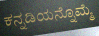
ಕನ್ನಡಿಯನ್ನೊಮ್ಮೆ